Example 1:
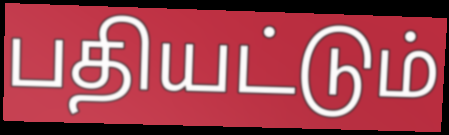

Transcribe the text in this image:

பதியட்டும்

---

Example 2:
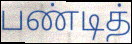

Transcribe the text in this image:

பண்டித்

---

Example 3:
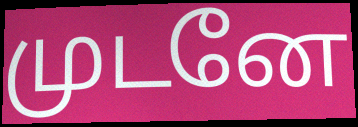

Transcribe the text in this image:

முடனே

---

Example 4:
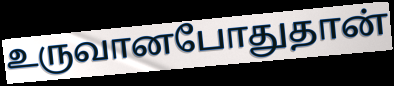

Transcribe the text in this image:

உருவானபோதுதான்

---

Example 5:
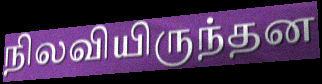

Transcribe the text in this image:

நிலவியிருந்தன